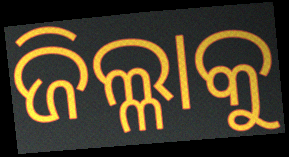
ଜିଲ୍ଳାକୁ